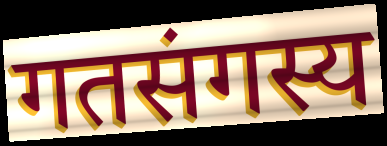
गतसंगस्य